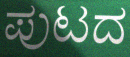
ಪುಟದ